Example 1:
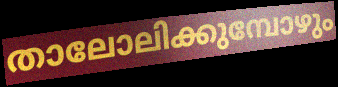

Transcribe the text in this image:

താലോലിക്കുമ്പോഴും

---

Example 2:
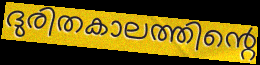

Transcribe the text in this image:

ദുരിതകാലത്തിന്റെ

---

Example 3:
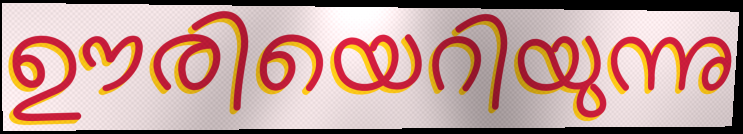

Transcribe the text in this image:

ഊരിയെറിയുന്നു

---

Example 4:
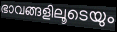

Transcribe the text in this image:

ഭാവങ്ങളിലൂടെയും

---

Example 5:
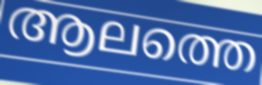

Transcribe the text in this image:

ആലത്തെ